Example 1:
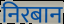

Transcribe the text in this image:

निरबान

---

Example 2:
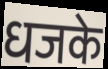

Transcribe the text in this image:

धजके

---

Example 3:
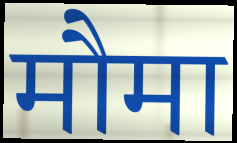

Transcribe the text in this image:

मौमा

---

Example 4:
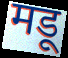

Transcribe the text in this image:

मडू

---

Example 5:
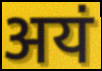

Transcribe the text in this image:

अयं